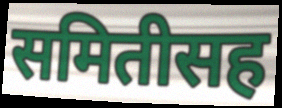
समितीसह